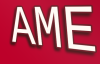
AME